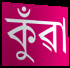
কুঁৱা